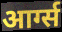
आर्ग्स